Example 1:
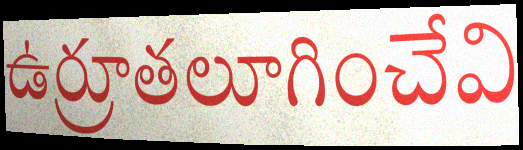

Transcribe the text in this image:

ఉర్రూతలూగించేవి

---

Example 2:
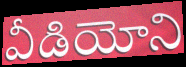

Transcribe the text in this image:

వీడియోని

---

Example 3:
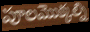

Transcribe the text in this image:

పూలమొక్కల్ని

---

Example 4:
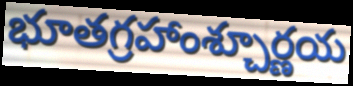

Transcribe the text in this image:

భూతగ్రహాంశ్చూర్ణయ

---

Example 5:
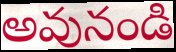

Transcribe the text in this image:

అవునండి